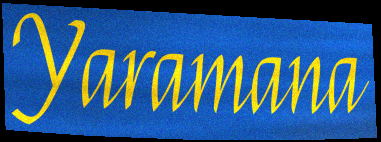
Yaramana